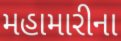
મહામારીના